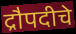
द्रौपदीचे